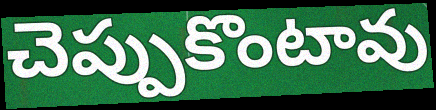
చెప్పుకొంటావు